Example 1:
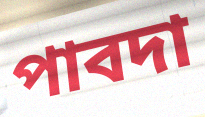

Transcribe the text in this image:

পাবদা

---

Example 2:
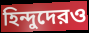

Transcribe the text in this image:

হিন্দুদেরও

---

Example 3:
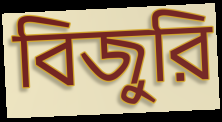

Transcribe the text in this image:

বিজুরি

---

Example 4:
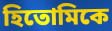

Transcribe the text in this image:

হিতোমিকে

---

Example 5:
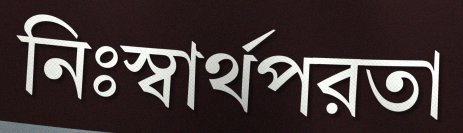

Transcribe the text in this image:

নিঃস্বার্থপরতা